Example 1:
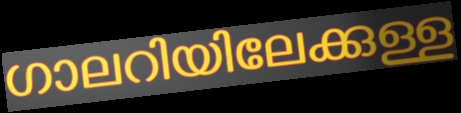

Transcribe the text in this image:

ഗാലറിയിലേക്കുള്ള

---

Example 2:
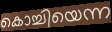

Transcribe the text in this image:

കൊച്ചിയെന്ന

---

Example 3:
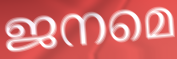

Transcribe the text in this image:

ജനമെ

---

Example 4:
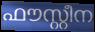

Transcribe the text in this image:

ഫൗസ്റ്റീന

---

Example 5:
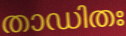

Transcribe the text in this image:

താഡിതഃ